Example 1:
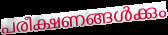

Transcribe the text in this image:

പരീക്ഷണങ്ങൾക്കും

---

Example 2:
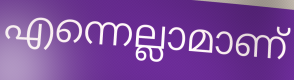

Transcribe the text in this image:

എന്നെല്ലാമാണ്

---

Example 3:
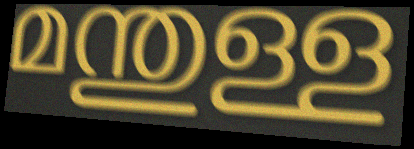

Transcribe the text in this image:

മന്തുള്ള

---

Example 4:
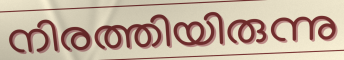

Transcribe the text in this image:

നിരത്തിയിരുന്നു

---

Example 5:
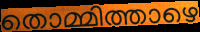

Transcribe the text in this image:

തൊമ്മിത്താഴെ